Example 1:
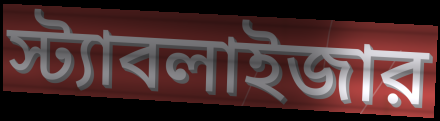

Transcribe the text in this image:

স্ট্যাবলাইজার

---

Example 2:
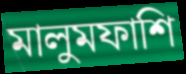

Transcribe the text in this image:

মালুমফাশি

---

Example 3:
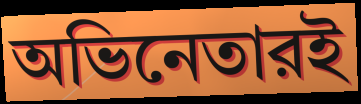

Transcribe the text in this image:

অভিনেতারই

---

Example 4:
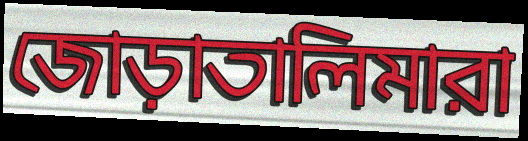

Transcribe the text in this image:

জোড়াতালিমারা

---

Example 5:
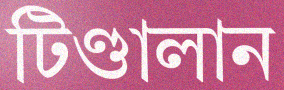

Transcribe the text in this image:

টিণ্ডালান